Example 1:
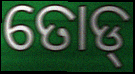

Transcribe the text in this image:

ତୋଡ୍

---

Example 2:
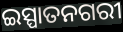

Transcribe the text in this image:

ଇସ୍ପାତନଗରୀ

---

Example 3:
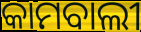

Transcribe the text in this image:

କାମବାଲୀ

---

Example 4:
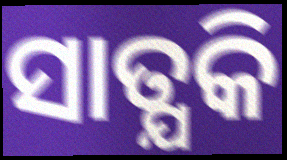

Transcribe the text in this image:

ସାତ୍ଯକି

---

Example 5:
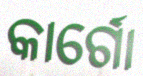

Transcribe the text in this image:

କାର୍ଗୋ